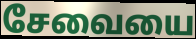
சேவையை